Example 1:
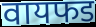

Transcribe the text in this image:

वायफड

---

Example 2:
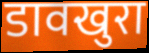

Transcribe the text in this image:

डावखुरा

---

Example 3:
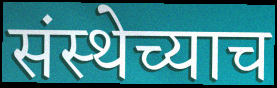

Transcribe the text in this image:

संस्थेच्याच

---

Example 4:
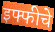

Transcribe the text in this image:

इफ्फीचे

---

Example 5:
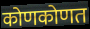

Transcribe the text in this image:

कोणकोणत